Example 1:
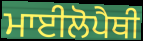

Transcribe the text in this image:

ਮਾਈਲੋਪੈਥੀ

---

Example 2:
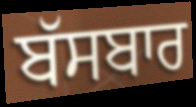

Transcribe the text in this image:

ਬੱਸਬਾਰ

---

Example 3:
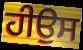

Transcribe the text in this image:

ਹੀਉਸ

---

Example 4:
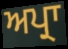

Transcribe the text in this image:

ਅਪ੍ਰਾ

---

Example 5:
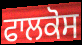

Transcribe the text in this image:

ਫਾਲਕੋਸ